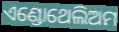
ଏଣ୍ଡୋଥେଲିଅମ